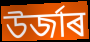
উৰ্জাৰ